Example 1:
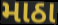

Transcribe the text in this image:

માઠા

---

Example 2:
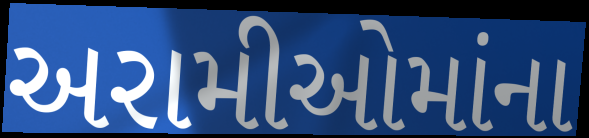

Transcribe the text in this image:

અરામીઓમાંના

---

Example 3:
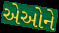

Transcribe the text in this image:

એઓને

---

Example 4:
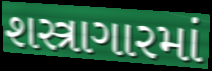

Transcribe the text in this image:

શસ્ત્રાગારમાં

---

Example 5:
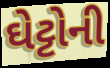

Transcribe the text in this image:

ઘેટ્ટોની